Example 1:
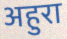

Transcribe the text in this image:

अहुरा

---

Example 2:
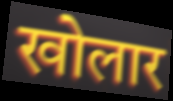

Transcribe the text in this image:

खोलार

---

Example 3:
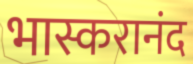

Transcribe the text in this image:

भास्करानंद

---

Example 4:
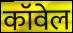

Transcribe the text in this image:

कॉवेल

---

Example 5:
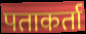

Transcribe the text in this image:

पताकर्ता